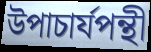
উপাচার্যপন্থী